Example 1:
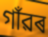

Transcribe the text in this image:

গাঁৱৰ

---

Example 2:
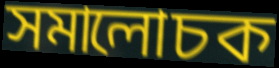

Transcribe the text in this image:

সমালোচক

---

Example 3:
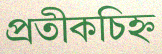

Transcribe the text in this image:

প্ৰতীকচিহ্ন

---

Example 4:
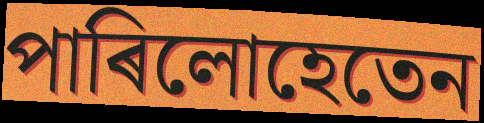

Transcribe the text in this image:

পাৰিলোহেতেন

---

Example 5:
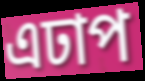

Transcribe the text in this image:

এঢাপ